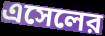
এসেলের